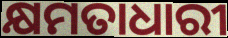
କ୍ଷମତାଧାରୀ